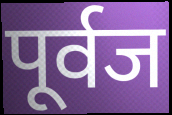
पूर्वज